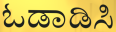
ಓಡಾಡಿಸಿ